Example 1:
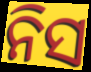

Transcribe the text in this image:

ନିସ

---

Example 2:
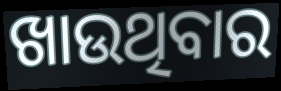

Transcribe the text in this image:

ଖାଉଥିବାର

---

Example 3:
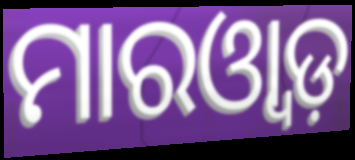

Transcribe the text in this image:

ମାରଓ୍ୱାଡ଼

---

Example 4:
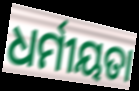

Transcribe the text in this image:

ଧର୍ମୀୟତା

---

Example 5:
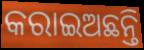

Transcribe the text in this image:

କରାଇଅଛନ୍ତି